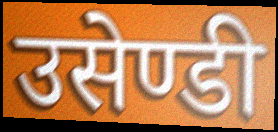
उसेण्डी